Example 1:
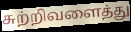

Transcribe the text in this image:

சுற்றிவளைத்து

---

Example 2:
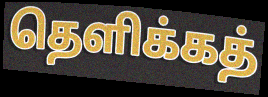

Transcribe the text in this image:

தெளிக்கத்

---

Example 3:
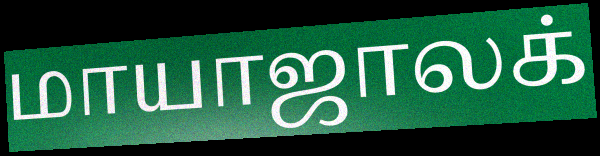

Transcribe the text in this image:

மாயாஜாலக்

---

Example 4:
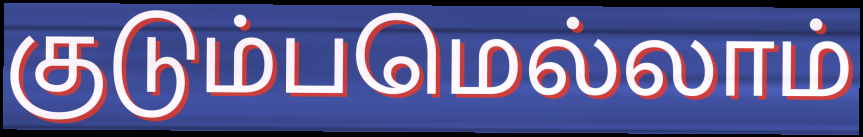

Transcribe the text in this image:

குடும்பமெல்லாம்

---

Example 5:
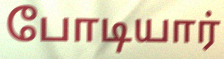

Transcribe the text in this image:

போடியார்